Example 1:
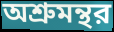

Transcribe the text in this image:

অশ্রুমন্থর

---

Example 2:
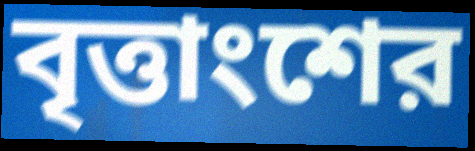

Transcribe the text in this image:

বৃত্তাংশের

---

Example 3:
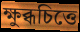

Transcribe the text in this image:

ক্ষুব্ধচিত্তে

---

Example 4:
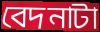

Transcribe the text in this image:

বেদনাটা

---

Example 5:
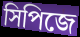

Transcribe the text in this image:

সিপিজে